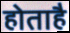
होताहै